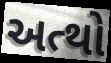
અત્થો